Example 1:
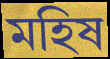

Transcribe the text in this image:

মহিষ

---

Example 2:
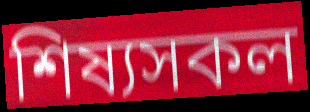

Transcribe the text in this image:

শিষ্যসকল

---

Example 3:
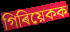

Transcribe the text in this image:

গিৰিয়েকক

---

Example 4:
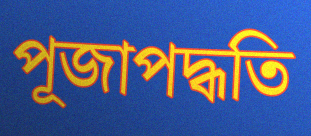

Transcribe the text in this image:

পূজাপদ্ধতি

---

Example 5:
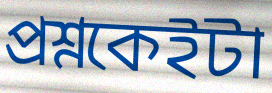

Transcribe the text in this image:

প্ৰশ্নকেইটা